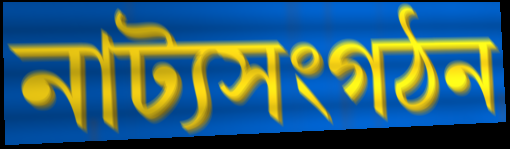
নাট্যসংগঠন